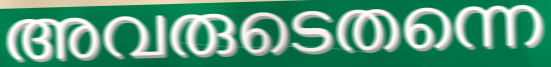
അവരുടെതന്നെ